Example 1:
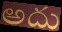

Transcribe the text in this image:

అదు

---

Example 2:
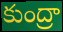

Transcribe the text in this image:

కుంద్రా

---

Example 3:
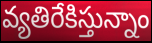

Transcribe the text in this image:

వ్యతిరేకిస్తున్నాం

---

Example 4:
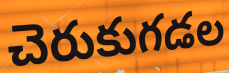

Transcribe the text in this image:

చెరుకుగడల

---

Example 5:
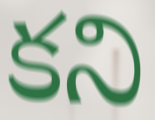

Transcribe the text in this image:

కని